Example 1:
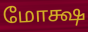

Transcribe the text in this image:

மோக்ஷ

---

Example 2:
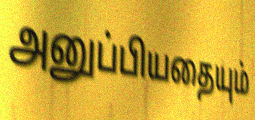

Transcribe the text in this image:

அனுப்பியதையும்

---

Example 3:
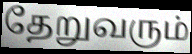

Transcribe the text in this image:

தேறுவரும்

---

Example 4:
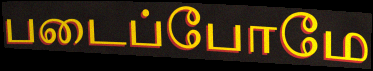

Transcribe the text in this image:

படைப்போமே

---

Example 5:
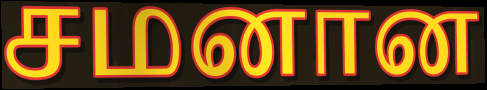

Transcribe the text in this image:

சமனான